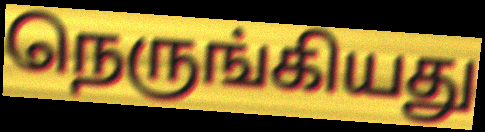
நெருங்கியது